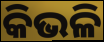
କିଭଳି